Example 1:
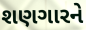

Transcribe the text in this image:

શણગારને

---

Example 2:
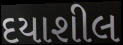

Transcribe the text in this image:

દયાશીલ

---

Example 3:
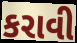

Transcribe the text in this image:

કરાવી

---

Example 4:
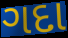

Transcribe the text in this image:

ગદા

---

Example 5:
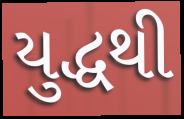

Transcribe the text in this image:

યુદ્ધથી